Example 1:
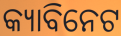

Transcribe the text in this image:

କ୍ୟାବିନେଟ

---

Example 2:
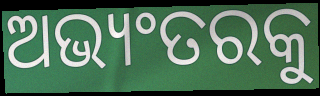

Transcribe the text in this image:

ଅଭ୍ୟଂତରକୁ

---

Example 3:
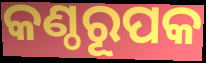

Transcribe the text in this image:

କଣ୍ଠରୂପକ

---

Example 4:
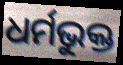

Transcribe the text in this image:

ଧର୍ମଭୁକ୍ତ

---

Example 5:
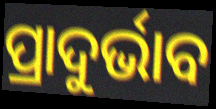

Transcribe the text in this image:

ପ୍ରାଦୁର୍ଭାବ